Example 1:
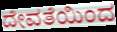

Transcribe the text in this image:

ದೇವತೆಯಿಂದ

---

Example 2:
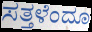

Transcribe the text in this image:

ಸತ್ತಳೆಂದೂ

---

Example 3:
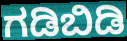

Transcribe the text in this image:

ಗಡಿಬಿಡಿ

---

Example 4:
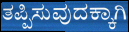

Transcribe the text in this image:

ತಪ್ಪಿಸುವುದಕ್ಕಾಗಿ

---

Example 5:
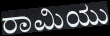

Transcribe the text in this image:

ರಾಮಿಯು